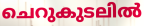
ചെറുകുടലിൽ